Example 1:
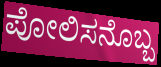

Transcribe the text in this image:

ಪೋಲಿಸನೊಬ್ಬ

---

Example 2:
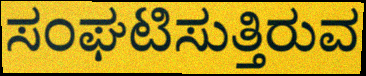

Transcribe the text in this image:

ಸಂಘಟಿಸುತ್ತಿರುವ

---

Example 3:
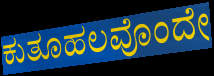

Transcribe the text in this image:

ಕುತೂಹಲವೊಂದೇ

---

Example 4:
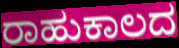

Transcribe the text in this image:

ರಾಹುಕಾಲದ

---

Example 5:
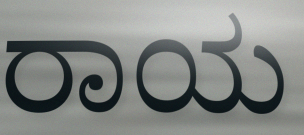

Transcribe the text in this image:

ರಾಯ